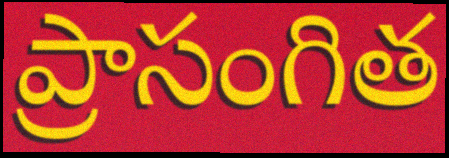
ప్రాసంగిత